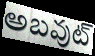
అబవుట్